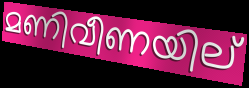
മണിവീണയില്